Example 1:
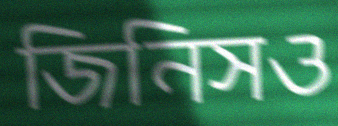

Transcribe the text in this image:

জিনিসও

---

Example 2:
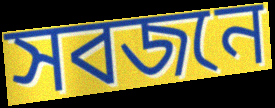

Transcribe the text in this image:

সবজনে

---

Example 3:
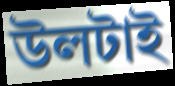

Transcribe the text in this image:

উলটাই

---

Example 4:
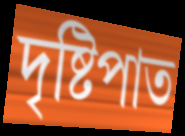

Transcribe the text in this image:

দৃষ্টিপাত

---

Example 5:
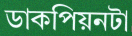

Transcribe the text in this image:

ডাকপিয়নটা